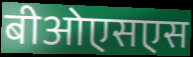
बीओएसएस